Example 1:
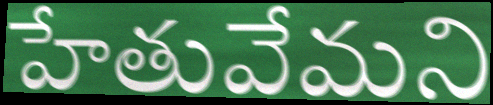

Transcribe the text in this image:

హేతువేమని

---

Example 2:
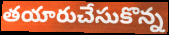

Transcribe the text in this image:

తయారుచేసుకొన్న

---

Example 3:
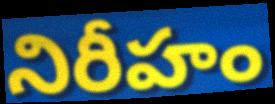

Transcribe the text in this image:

నిరీహం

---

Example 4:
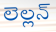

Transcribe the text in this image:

లెల్లన్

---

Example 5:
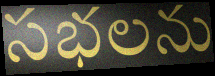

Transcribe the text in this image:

సభలను